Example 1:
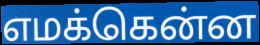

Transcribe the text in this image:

எமக்கென்ன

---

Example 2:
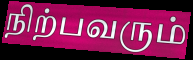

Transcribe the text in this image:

நிற்பவரும்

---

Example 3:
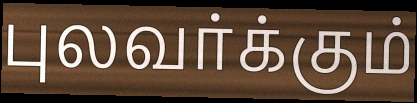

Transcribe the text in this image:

புலவர்க்கும்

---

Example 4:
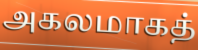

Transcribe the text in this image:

அகலமாகத்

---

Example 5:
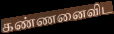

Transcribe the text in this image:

கண்ணனைவிட